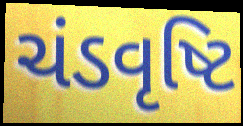
ચંડવૃષ્ટિ